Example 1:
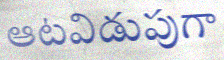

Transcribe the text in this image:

ఆటవిడుపుగా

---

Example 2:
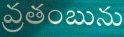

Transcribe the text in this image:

వ్రతంబును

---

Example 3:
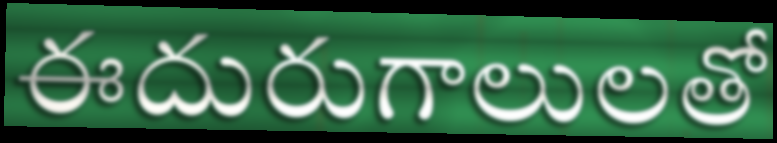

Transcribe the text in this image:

ఈదురుగాలులతో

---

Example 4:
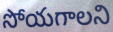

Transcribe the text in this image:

సోయగాలని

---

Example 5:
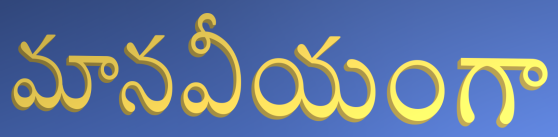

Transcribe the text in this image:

మానవీయంగా